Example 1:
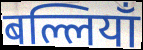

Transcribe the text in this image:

बल्लियाँ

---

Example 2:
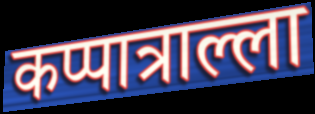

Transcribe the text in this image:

कप्पात्राल्ला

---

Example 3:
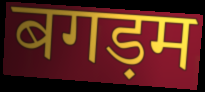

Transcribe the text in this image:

बगड़म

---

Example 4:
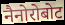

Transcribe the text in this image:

नैनोरोबोट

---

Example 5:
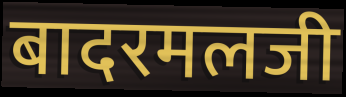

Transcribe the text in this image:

बादरमलजी